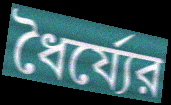
ধৈর্য্যের